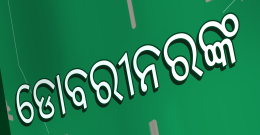
ଡୋବରୀନରଙ୍କ